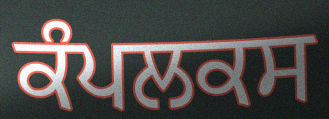
ਕੰਪਲਕਸ